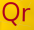
Qr